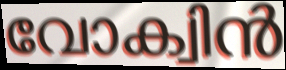
വോക്വിൻ